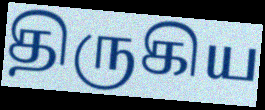
திருகிய